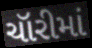
ચૉરીમાં